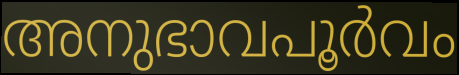
അനുഭാവപൂർവം